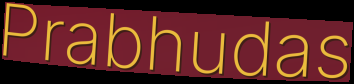
Prabhudas